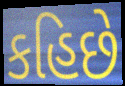
કહિછે